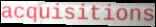
acquisitions